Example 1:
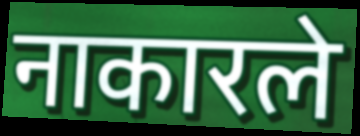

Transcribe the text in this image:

नाकारले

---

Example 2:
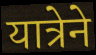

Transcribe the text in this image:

यात्रेने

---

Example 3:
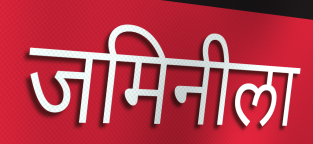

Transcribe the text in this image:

जमिनीला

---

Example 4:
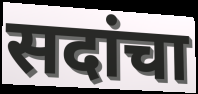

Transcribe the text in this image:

सदांचा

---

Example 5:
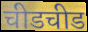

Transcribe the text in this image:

चीडचीड